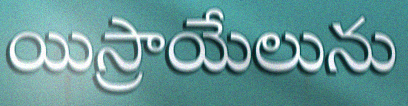
యిస్రాయేలును